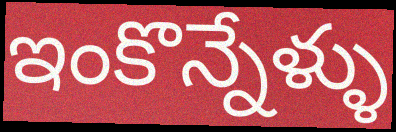
ఇంకొన్నేళ్ళు